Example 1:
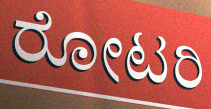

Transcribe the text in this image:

ರೋಟರಿ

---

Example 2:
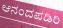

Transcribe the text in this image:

ಆನಂದಪಡಿರಿ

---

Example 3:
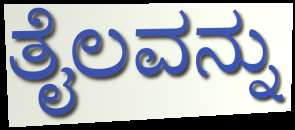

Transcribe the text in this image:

ತೈಲವನ್ನು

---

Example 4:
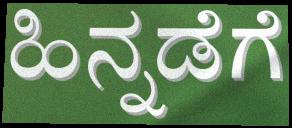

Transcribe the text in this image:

ಹಿನ್ನಡೆಗೆ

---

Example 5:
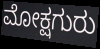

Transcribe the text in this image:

ಮೋಕ್ಷಗುರು